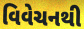
વિવેચનથી